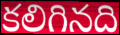
కలిగినది